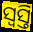
ସ୍ଵସ୍ତି